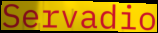
Servadio